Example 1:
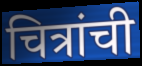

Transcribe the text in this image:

चित्रांची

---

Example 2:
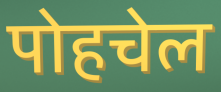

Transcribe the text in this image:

पोहचेल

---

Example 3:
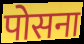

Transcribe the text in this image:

पोसना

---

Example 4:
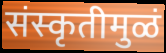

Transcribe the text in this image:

संस्कृतीमुळं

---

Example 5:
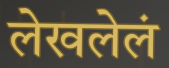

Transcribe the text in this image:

लेखलेलं